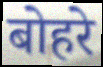
बोहरे